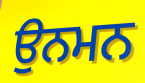
ਉਨਮਨ